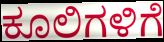
ಕೂಲಿಗಳಿಗೆ